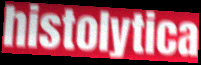
histolytica